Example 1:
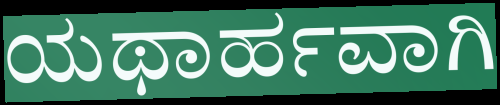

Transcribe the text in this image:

ಯಥಾರ್ಹವಾಗಿ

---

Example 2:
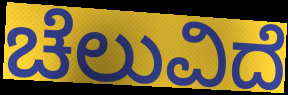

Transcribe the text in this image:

ಚೆಲುವಿದೆ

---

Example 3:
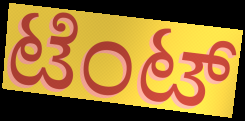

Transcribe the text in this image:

ಟೆಂಟ್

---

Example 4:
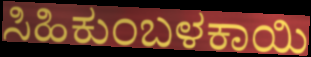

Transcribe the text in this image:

ಸಿಹಿಕುಂಬಳಕಾಯಿ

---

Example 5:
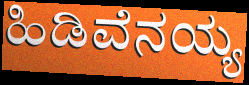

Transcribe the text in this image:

ಹಿಡಿವೆನಯ್ಯ